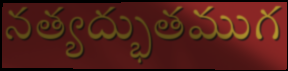
నత్యద్భుతముగ